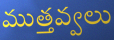
ముత్తవ్వలు